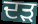
ਦੜ